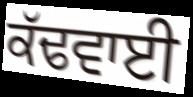
ਕੱਢਵਾਈ